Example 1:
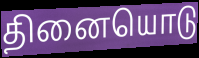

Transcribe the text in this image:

தினையொடு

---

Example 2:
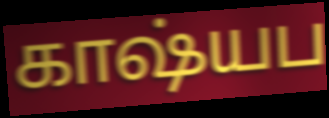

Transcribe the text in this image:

காஷ்யப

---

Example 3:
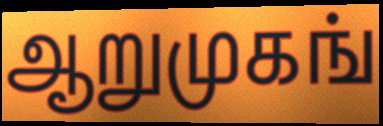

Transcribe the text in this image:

ஆறுமுகங்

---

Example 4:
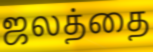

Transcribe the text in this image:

ஜலத்தை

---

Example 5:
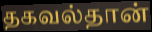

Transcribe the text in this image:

தகவல்தான்